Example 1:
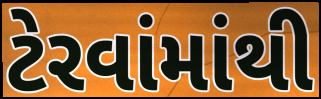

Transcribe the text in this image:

ટેરવાંમાંથી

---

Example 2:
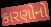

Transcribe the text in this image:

કારણોનો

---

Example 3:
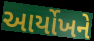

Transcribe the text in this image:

આર્યોખને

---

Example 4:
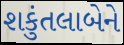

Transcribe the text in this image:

શકુંતલાબેને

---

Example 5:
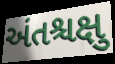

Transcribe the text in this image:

અંતશ્ચક્ષુ